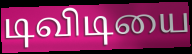
டிவிடியை